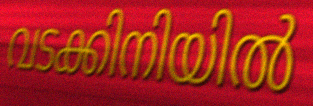
വടക്കിനിയിൽ